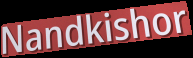
Nandkishor